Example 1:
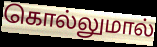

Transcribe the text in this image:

கொல்லுமால்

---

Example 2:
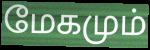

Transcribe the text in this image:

மேகமும்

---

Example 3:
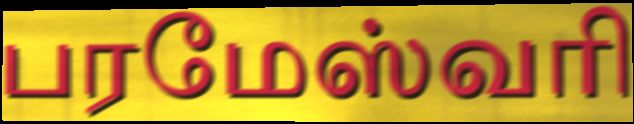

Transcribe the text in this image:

பரமேஸ்வரி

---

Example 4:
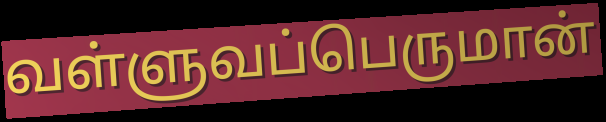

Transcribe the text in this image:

வள்ளுவப்பெருமான்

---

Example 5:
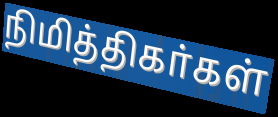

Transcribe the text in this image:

நிமித்திகர்கள்